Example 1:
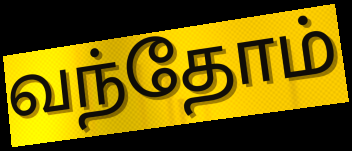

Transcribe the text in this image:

வந்தோம்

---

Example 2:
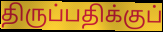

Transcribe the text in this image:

திருப்பதிக்குப்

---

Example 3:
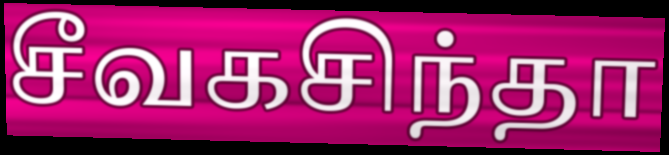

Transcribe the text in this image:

சீவகசிந்தா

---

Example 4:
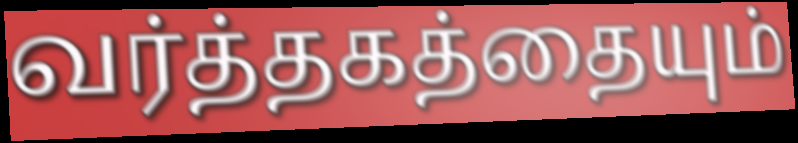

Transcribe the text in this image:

வர்த்தகத்தையும்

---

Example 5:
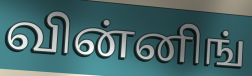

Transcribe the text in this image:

வின்னிங்